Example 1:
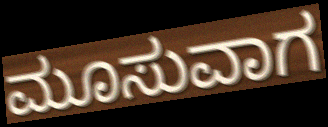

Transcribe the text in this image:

ಮೂಸುವಾಗ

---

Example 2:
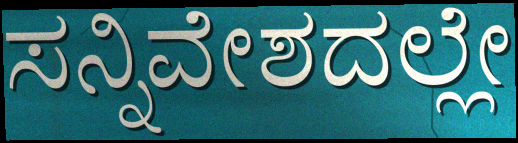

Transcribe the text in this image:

ಸನ್ನಿವೇಶದಲ್ಲೇ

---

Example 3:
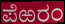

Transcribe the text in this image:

ಪೆಱರಂ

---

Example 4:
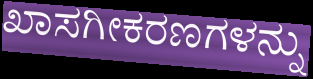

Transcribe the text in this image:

ಖಾಸಗೀಕರಣಗಳನ್ನು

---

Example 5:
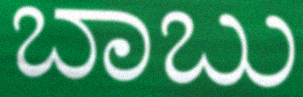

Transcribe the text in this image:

ಬಾಬು